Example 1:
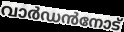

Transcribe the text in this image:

വാർഡൻനോട്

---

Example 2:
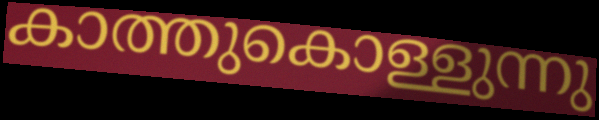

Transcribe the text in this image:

കാത്തുകൊള്ളുന്നു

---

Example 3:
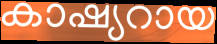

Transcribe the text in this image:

കാഷ്യറായ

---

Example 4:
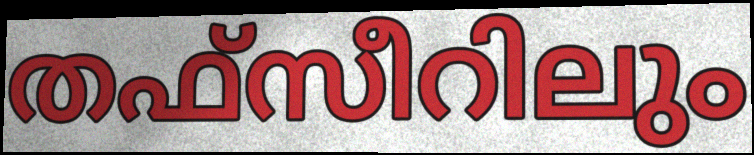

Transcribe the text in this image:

തഫ്സീറിലും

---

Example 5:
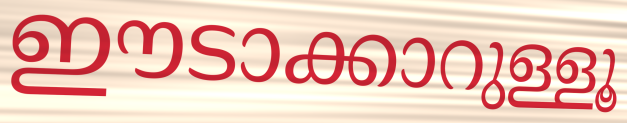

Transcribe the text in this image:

ഈടാക്കാറുള്ളൂ